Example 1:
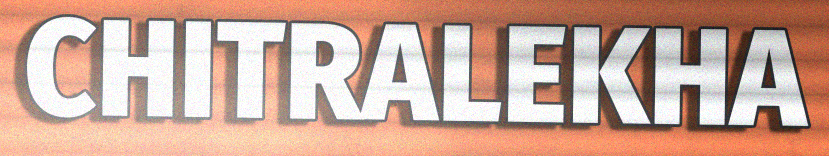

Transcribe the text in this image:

CHITRALEKHA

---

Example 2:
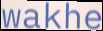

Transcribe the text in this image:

wakhe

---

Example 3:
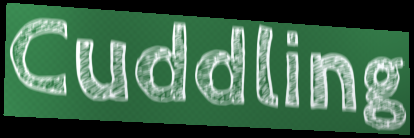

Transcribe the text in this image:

Cuddling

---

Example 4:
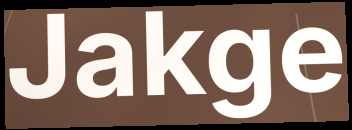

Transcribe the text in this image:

Jakge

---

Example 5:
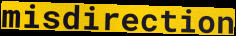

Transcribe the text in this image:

misdirection